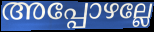
അപ്പോഴല്ലേ